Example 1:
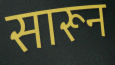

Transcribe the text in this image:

सारून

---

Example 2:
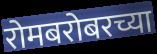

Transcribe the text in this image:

रोमबरोबरच्या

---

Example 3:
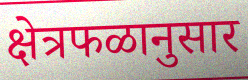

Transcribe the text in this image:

क्षेत्रफळानुसार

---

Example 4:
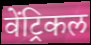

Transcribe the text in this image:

वेंट्रिकल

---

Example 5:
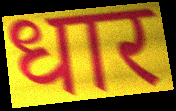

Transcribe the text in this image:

धार